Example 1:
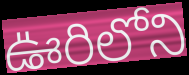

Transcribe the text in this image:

ఊరిలోని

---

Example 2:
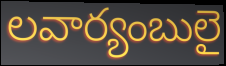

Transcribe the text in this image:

లవార్యంబులై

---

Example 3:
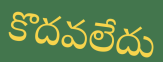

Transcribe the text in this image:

కొదవలేదు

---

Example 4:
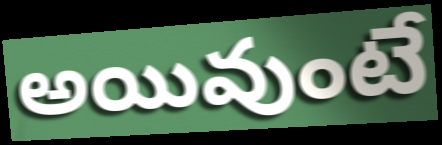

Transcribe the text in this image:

అయివుంటే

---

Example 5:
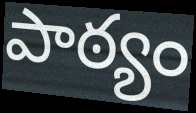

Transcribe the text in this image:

పాఠ్యం